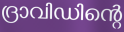
ദ്രാവിഡിന്റെ